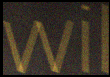
wil